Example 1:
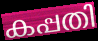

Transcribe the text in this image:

കപ്പതി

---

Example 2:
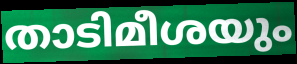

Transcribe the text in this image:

താടിമീശയും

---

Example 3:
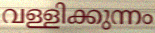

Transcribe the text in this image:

വള്ളിക്കുന്നം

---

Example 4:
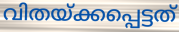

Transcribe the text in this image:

വിതയ്ക്കപ്പെട്ടത്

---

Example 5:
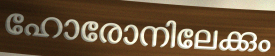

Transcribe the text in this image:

ഹോരോനിലേക്കും